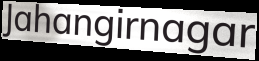
Jahangirnagar